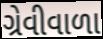
ગ્રેવીવાળા